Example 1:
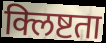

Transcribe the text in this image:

क्‍लिष्टता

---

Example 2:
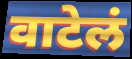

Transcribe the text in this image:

वाटेलं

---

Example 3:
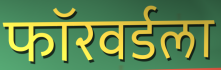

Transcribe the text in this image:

फॉरवर्डला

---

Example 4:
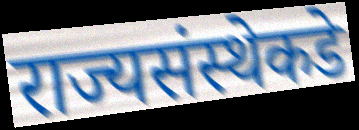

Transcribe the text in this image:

राज्यसंस्थेकडे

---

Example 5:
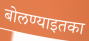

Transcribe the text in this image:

बोलण्याइतका